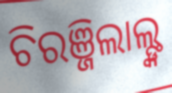
ଚିରଞ୍ଜିଲାଲ୍ଙ୍କ